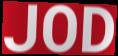
JOD